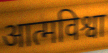
आत्मविश्वा